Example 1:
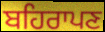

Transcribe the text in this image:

ਬਹਿਰਾਪਣ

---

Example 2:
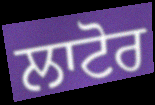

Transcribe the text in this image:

ਲਾਟੋਰ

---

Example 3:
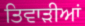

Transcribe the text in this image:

ਤਿਵਾੜੀਆਂ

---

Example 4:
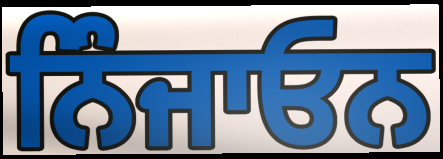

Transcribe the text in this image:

ਨਿੰਜਾਓਨ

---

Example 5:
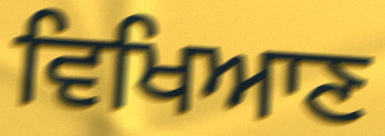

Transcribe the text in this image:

ਵਿਖਿਆਣ